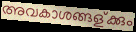
അവകാശങ്ങള്ക്കും